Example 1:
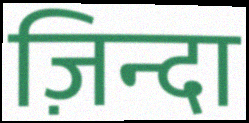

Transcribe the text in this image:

ज़िन्दा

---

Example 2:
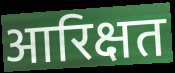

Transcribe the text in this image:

आरिक्षत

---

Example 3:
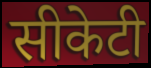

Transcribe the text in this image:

सीकेटी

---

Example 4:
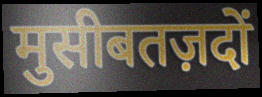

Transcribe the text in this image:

मुसीबतज़दों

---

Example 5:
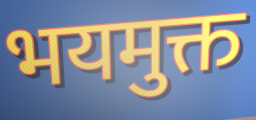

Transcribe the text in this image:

भयमुक्त